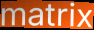
matrix